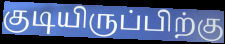
குடியிருப்பிற்கு